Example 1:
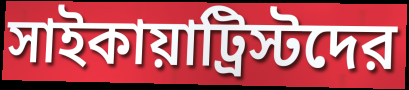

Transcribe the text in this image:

সাইকায়াট্রিস্টদের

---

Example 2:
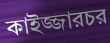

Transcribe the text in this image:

কাইজ্জারচর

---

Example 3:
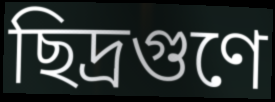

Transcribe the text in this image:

ছিদ্রগুণে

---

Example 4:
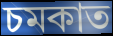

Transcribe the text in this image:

চমকাত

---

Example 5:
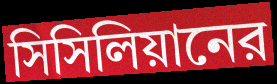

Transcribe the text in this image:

সিসিলিয়ানের